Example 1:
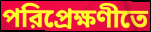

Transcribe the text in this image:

পরিপ্রেক্ষণীতে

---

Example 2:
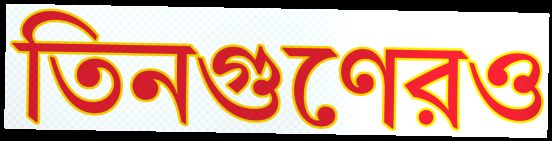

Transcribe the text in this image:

তিনগুণেরও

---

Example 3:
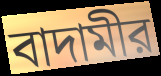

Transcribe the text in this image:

বাদামীর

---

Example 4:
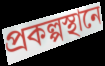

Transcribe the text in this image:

প্রকল্পস্থানে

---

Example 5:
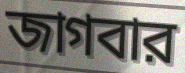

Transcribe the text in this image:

জাগবার